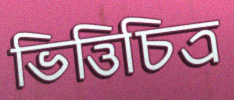
ভিত্তিচিত্র